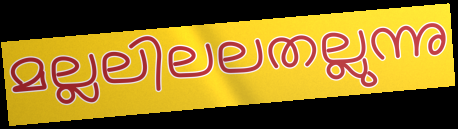
മല്ലലിലലതല്ലുന്നു